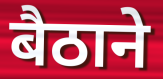
बैठाने